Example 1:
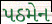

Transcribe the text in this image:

પઠમેન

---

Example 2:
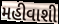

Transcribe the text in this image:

મહીવાશી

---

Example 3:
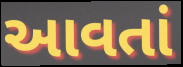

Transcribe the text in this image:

આવતાં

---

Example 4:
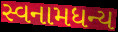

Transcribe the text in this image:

સ્વનામધન્ય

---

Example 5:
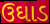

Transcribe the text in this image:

ઉઘાડ